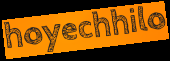
hoyechhilo